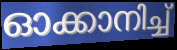
ഓക്കാനിച്ച്